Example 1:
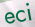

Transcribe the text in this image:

eci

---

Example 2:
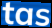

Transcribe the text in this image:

tas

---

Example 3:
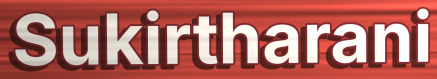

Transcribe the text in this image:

Sukirtharani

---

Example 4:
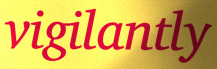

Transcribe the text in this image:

vigilantly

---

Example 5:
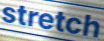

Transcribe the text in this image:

stretch